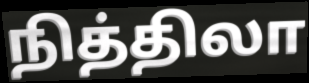
நித்திலா